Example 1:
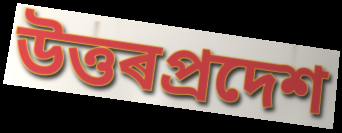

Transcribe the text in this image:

উত্তৰপ্ৰদেশ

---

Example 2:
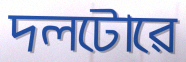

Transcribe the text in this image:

দলটোৱে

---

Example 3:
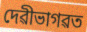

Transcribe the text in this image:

দেৱীভাগৱত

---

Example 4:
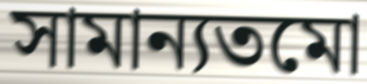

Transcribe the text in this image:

সামান্যতমো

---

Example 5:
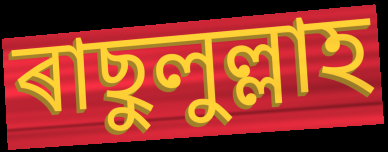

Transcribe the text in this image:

ৰাছুলুল্লাহ